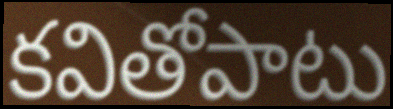
కవితోపాటు